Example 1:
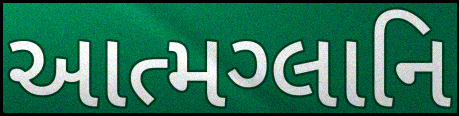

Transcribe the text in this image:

આત્મગ્લાનિ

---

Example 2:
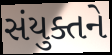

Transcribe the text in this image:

સંયુક્તને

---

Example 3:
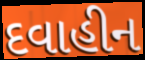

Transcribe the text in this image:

દવાહીન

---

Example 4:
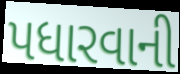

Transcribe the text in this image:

પધારવાની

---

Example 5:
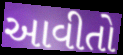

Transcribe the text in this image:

આવીતો